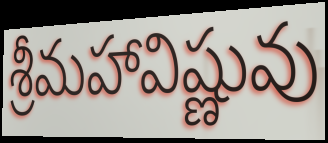
శ్రీమహావిష్ణువు